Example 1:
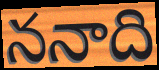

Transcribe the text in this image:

ననాది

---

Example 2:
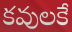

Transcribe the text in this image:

కవులకే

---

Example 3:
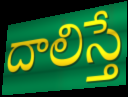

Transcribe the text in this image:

దాలిస్తే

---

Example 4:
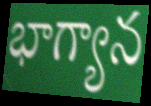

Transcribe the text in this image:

భాగ్యాన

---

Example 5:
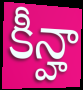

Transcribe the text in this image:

కీన్హా